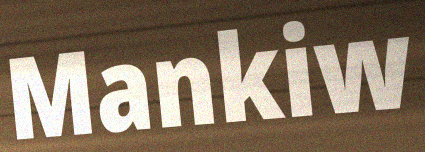
Mankiw